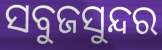
ସବୁଜସୁନ୍ଦର